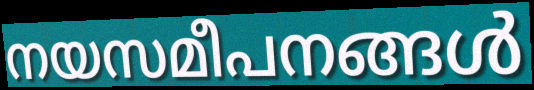
നയസമീപനങ്ങൾ